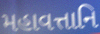
મહાવત્તાનિ